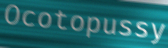
Ocotopussy